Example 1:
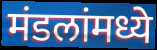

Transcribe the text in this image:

मंडलांमध्ये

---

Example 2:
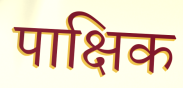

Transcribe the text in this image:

पाक्षिक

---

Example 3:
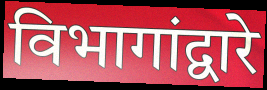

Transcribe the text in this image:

विभागांद्वारे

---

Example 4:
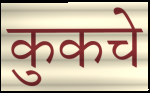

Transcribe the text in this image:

कुकचे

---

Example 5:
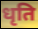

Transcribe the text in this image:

धृति